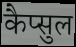
कैप्सुल